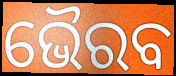
ଭୈରବ